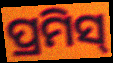
ପ୍ରମିସ୍